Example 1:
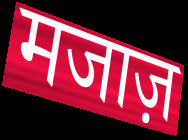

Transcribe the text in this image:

मजाज़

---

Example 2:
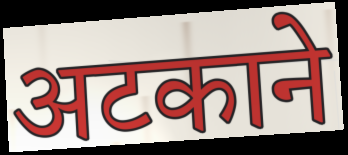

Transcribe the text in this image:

अटकाने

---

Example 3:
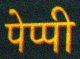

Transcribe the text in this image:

पेप्पी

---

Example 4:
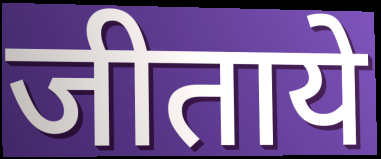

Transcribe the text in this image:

जीताये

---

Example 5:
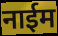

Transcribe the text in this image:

नाईम